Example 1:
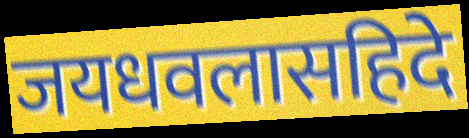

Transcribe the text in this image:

जयधवलासहिदे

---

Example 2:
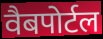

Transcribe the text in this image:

वैबपोर्टल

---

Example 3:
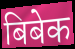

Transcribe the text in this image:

बिबेक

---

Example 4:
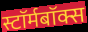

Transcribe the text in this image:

स्टॉर्मबॉक्स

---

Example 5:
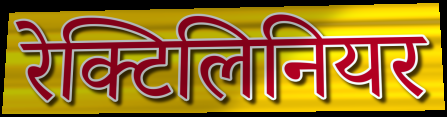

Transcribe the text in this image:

रेक्टिलिनियर